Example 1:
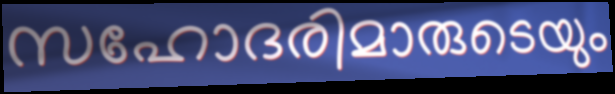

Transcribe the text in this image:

സഹോദരിമാരുടെയും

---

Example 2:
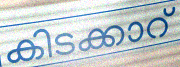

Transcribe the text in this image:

കിടക്കാറ്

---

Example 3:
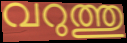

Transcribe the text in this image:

വറുത്തു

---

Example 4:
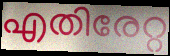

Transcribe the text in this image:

എതിരേറ്റ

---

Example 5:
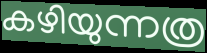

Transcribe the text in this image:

കഴിയുന്നത്ര